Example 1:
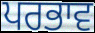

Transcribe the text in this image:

ਪਰਭਾਵ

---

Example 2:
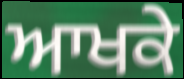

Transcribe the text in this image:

ਆਖਕੇ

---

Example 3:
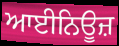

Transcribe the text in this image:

ਆਈਨਿਊਜ਼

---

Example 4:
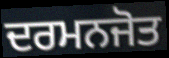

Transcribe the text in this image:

ਦਰਮਨਜੋਤ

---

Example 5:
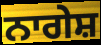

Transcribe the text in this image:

ਨਾਗੇਸ਼